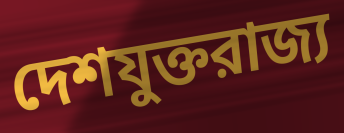
দেশযুক্তরাজ্য